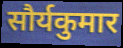
सौर्यकुमार